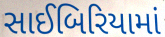
સાઈબિરિયામાં